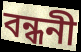
বন্ধনী